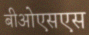
बीओएसएस